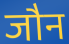
जौन